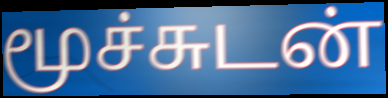
மூச்சுடன்